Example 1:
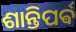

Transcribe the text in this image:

ଶାନ୍ତିପର୍ଵ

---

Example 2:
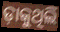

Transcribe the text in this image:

ଡ଼ାକୁଥିଲି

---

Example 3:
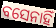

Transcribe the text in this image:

ବସେନାହିଁ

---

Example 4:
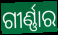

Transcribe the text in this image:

ଗୀର୍ଣ୍ଣାର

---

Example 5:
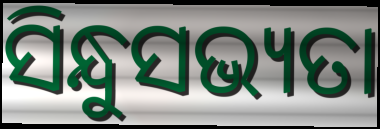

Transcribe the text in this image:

ସିନ୍ଧୁସଭ୍ୟତା